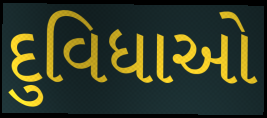
દુવિધાઓ